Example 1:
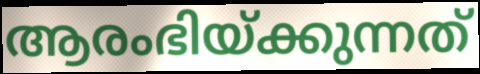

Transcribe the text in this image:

ആരംഭിയ്ക്കുന്നത്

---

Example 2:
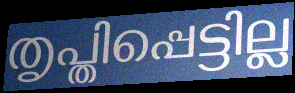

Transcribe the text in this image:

തൃപ്തിപ്പെട്ടില്ല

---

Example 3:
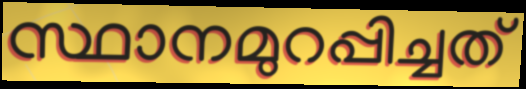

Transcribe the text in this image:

സ്ഥാനമുറപ്പിച്ചത്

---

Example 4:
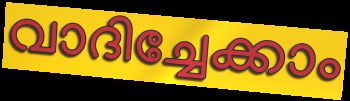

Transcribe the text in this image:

വാദിച്ചേക്കാം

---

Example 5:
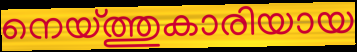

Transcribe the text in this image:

നെയ്ത്തുകാരിയായ